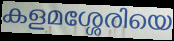
കളമശ്ശേരിയെ